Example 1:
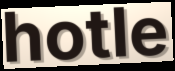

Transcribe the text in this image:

hotle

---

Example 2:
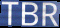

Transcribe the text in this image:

TBR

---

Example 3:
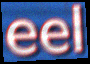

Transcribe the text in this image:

eel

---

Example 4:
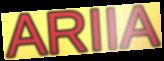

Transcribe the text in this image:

ARIIA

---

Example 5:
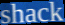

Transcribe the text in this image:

shack